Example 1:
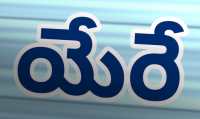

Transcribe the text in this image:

యేరే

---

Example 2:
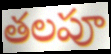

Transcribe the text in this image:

తలపూ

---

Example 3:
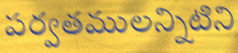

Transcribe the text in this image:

పర్వతములన్నిటిని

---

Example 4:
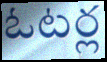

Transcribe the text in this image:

ఓటర్ల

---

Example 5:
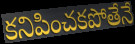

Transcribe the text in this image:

కనిపించకపోతేనే